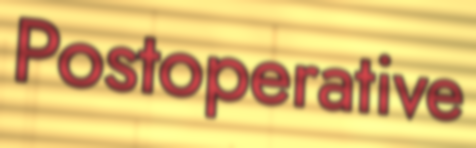
Postoperative